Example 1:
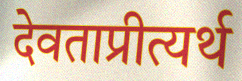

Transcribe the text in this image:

देवताप्रीत्यर्थ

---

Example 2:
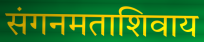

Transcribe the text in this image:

संगनमताशिवाय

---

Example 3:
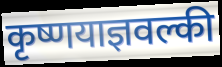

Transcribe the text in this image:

कृष्णयाज्ञवल्की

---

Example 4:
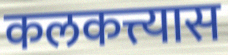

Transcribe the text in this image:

कलकत्त्यास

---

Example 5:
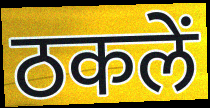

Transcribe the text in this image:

ठकलें